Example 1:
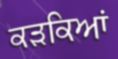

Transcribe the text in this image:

ਕੜਕਿਆਂ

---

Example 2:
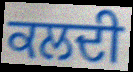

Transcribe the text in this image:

ਕਲਦੀ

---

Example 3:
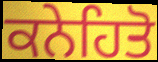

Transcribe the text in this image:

ਕਨੇਹਿਤੋ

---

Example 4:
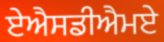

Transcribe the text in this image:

ਏਐਸਡੀਐਮਏ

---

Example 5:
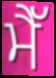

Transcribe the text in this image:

ਮੈੱ